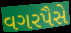
વગરપૈસે